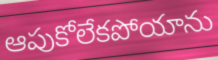
ఆపుకోలేకపోయాను